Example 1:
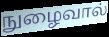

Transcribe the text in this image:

நுழைவால்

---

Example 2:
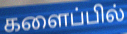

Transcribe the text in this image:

களைப்பில்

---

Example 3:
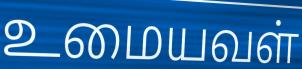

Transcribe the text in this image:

உமையவள்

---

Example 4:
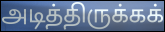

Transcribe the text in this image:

அடித்திருக்கக்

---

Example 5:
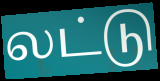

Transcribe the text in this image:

லட்டு